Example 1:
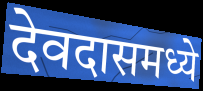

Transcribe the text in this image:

देवदासमध्ये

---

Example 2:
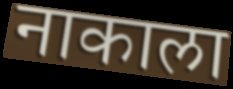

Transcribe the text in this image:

नाकाला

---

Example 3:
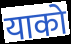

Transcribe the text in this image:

याको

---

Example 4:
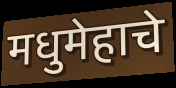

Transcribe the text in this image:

मधुमेहाचे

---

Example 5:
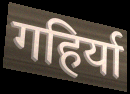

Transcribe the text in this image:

गहिर्या